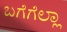
ಬಗೆಗೆಲ್ಲಾ